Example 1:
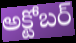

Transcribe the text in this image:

అక్టోబర్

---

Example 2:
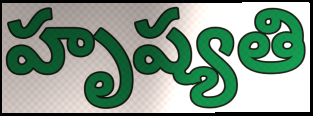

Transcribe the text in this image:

హృష్యతి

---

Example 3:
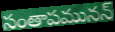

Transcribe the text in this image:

సంతాపమునన్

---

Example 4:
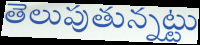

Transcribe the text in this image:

తెలుపుతున్నట్టు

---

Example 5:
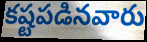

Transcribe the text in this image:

కష్టపడినవారు